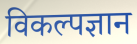
विकल्पज्ञान